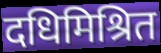
दधिमिश्रित